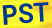
PST